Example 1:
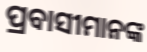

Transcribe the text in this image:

ପ୍ରବାସୀମାନଙ୍କ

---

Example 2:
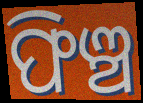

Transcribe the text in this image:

ଫିଞ୍ଚ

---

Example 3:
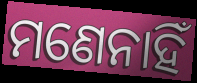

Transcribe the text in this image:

ମଣେନାହିଁ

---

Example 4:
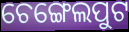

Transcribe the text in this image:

ଚେଙ୍ଗେଲପୁଟ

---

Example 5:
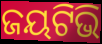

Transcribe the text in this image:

ଜୟଟିଭି